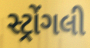
સ્ટ્રોંગલી